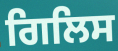
ਗਿਲਿਸ